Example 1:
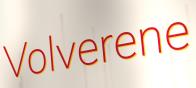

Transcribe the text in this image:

Volverene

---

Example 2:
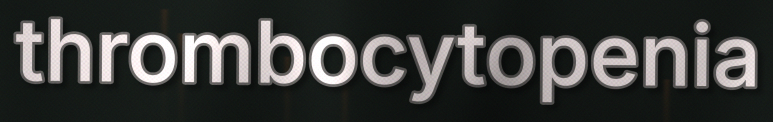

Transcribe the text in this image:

thrombocytopenia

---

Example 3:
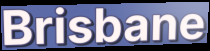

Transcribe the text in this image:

Brisbane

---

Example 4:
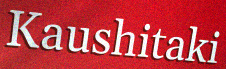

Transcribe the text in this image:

Kaushitaki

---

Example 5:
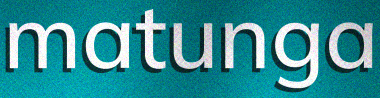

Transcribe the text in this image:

matunga